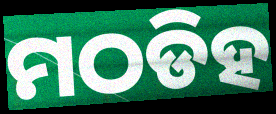
ମଠଡିହ